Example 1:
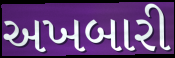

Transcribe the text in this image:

અખબારી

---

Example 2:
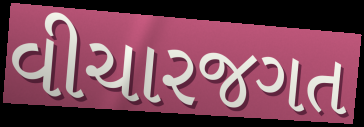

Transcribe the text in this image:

વીચારજગત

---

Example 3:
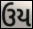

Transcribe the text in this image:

ઉય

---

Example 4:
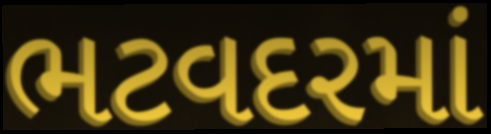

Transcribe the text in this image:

ભટવદરમાં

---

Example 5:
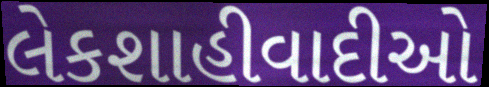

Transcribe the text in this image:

લેકશાહીવાદીઓ